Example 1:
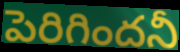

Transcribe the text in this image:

పెరిగిందనీ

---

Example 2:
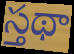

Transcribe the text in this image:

స్తథా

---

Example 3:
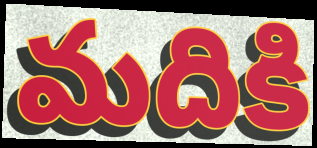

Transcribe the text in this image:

మదికి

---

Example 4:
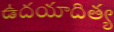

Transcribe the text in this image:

ఉదయాదిత్య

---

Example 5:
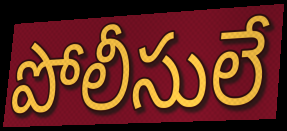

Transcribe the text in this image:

పోలీసులే